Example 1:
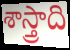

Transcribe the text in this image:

శాస్త్రాది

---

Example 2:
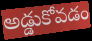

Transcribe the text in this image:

అడ్డుకోవడం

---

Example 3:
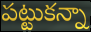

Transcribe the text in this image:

పట్టుకన్నా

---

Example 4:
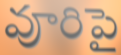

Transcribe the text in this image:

వూరిపై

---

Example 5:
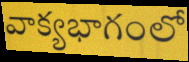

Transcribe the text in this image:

వాక్యభాగంలో